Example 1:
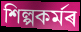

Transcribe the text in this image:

শিল্পকৰ্মৰ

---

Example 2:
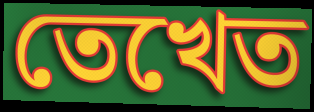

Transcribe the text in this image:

তেখেত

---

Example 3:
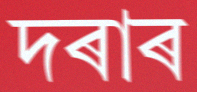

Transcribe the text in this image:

দৰাৰ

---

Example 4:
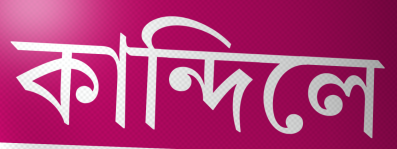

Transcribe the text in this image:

কান্দিলে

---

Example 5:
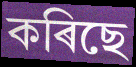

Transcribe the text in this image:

কৰিছে